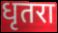
धृतरा